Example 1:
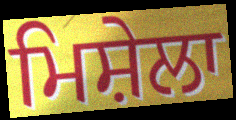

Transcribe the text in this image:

ਮਿਸ਼ੇਲਾ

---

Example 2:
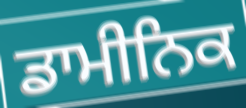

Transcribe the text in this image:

ਡਾਮੀਨਿਕ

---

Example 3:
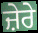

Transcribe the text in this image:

ਜ਼ੇਰੇ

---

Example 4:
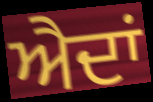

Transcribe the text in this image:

ਐਦਾਂ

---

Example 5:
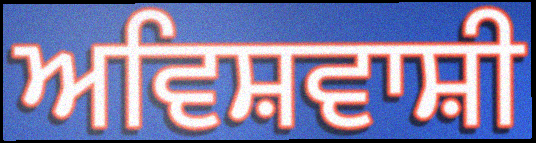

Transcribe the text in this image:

ਅਵਿਸ਼ਵਾਸ਼ੀ